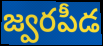
జ్వరపీడ